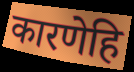
कारणेहि